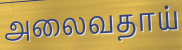
அலைவதாய்